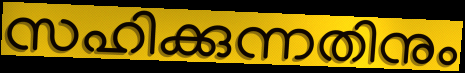
സഹിക്കുന്നതിനും